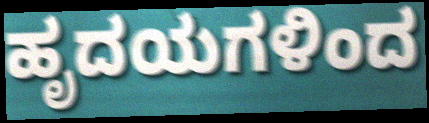
ಹೃದಯಗಳಿಂದ